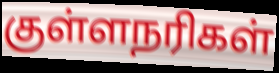
குள்ளநரிகள்